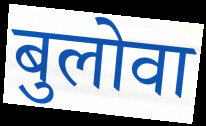
बुलोवा